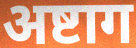
अष्टाग